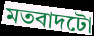
মতবাদটো